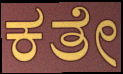
ಕತೇ